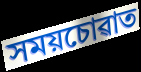
সময়চোৱাত